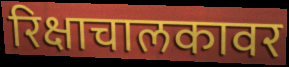
रिक्षाचालकावर